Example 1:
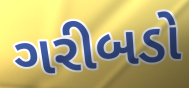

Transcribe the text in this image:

ગરીબડો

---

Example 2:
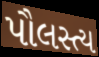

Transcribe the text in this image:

પૌલસ્ત્ય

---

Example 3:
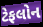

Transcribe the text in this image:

ટેફલોન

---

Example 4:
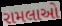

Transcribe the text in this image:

રામલાઓ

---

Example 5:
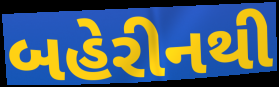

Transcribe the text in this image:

બહેરીનથી